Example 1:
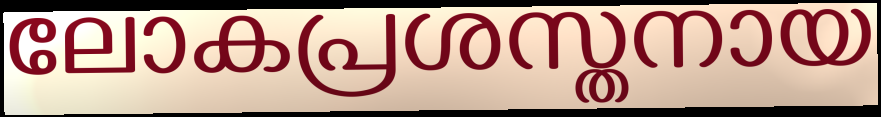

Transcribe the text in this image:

ലോകപ്രശസ്തനായ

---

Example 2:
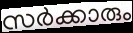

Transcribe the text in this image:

സർക്കാരും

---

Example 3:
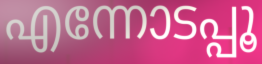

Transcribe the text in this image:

എന്നോടപ്പൂ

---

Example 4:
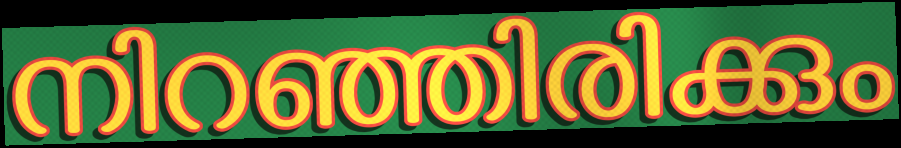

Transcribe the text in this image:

നിറഞ്ഞിരിക്കും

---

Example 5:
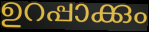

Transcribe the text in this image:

ഉറപ്പാക്കും